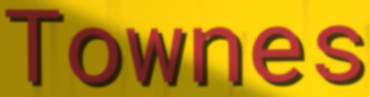
Townes